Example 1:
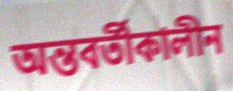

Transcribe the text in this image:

অন্তবর্তীকালীন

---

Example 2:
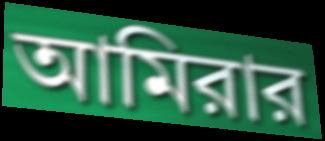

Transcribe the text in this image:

আমিরার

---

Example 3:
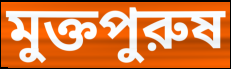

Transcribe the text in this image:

মুক্তপুরুষ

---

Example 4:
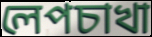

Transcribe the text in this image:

লেপচাখা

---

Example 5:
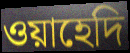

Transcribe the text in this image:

ওয়াহেদি